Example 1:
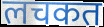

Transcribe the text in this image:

लचकत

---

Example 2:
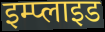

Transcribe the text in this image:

इम्प्लाइड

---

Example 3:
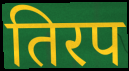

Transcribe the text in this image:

तिरप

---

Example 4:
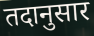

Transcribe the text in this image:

तदानुसार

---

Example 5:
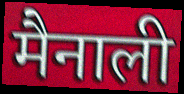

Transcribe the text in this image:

मैनाली